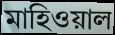
মাহিওয়াল